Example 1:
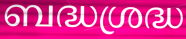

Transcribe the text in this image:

ബദ്ധശ്രദ്ധ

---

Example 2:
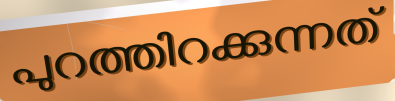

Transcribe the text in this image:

പുറത്തിറക്കുന്നത്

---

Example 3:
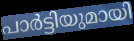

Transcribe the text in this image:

പാർട്ടിയുമായി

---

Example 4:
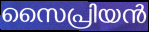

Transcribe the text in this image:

സൈപ്രിയൻ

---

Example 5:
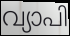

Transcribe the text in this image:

വ്യാപി